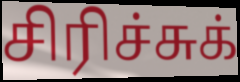
சிரிச்சுக்